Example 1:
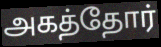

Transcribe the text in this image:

அகத்தோர்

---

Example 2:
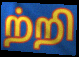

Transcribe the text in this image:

ற்றி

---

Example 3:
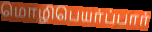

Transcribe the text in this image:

மொழிபெயர்ப்பார்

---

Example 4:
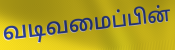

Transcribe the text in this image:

வடிவமைப்பின்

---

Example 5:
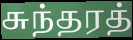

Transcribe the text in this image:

சுந்தரத்